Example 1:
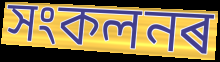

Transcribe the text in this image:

সংকলনৰ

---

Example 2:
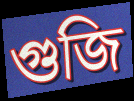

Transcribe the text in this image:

গুজি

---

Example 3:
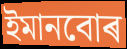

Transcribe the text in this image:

ইমানবোৰ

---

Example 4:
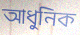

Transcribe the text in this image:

আধুনিক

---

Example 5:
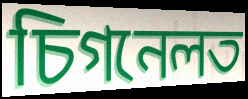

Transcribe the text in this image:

চিগনেলত